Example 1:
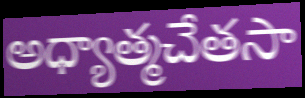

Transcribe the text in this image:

అధ్యాత్మచేతసా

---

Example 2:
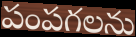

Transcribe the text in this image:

పంపగలను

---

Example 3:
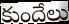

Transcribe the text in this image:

కుందేలు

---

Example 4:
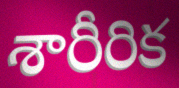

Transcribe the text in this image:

శారీరిక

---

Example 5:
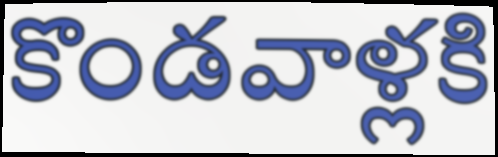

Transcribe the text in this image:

కొండవాళ్లకి